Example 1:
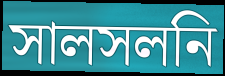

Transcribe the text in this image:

সালসলনি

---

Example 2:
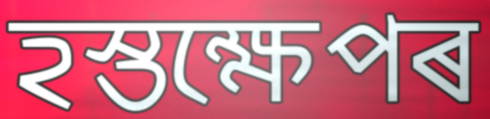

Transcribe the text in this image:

হস্তক্ষেপৰ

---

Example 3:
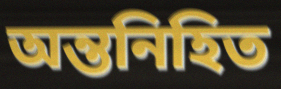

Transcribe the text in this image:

অন্তনিহিত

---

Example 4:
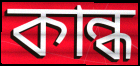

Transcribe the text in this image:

কান্ধ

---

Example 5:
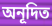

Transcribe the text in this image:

অনূদিত